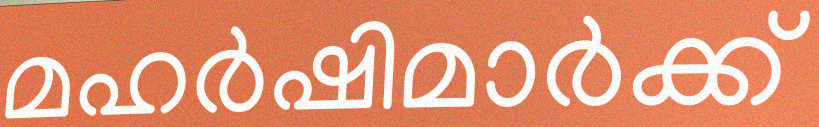
മഹർഷിമാർക്ക്